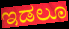
ಇಡಲೂ